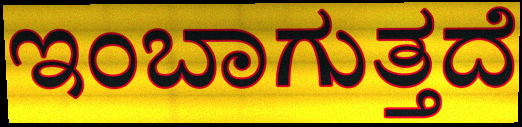
ಇಂಬಾಗುತ್ತದೆ